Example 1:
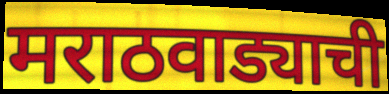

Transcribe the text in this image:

मराठवाड्याची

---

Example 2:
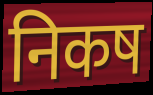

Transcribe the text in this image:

निकष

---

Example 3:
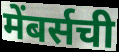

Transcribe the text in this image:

मेंबर्सची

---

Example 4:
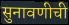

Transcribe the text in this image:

सुनावणीची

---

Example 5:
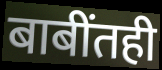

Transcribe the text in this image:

बाबींतही